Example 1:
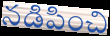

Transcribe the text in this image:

నడిపించి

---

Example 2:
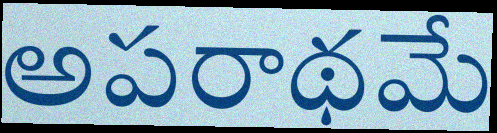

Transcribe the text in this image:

అపరాథమే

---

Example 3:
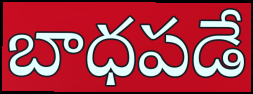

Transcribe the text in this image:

బాధపడే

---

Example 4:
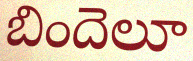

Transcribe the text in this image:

బిందెలూ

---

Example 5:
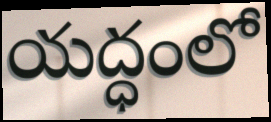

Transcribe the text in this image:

యద్ధంలో